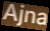
Ajna